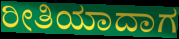
ರೀತಿಯಾದಾಗ